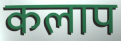
कलाप